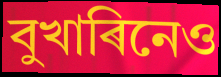
বুখাৰিনেও